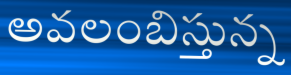
అవలంబిస్తున్న